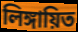
লিঙ্গায়িত